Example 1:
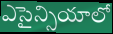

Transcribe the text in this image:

ఎసైన్సియాలో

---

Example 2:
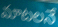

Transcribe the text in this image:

మాటలనే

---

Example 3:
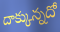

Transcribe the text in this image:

దాక్కున్నదో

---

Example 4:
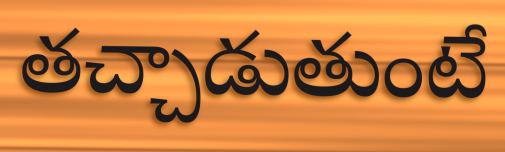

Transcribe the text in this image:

తచ్చాడుతుంటే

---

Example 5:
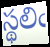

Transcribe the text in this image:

స్థలిఁ